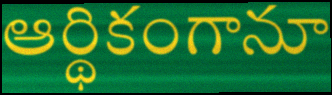
ఆర్థికంగానూ